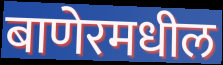
बाणेरमधील